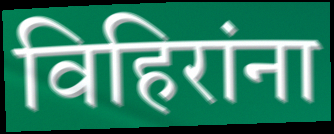
विहिरांना